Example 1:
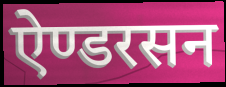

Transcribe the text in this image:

ऐण्डरसन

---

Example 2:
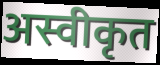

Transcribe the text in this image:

अस्वीकृत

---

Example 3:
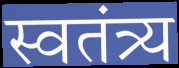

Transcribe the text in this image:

स्वतंत्र्य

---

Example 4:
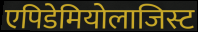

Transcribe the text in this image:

एपिडेमियोलाजिस्ट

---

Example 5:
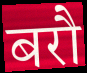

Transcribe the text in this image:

बरौ